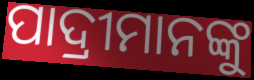
ପାଦ୍ରୀମାନଙ୍କୁ